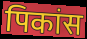
पिकांस